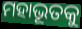
ମହାଭୂତକୁ